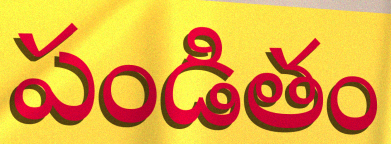
పండితం